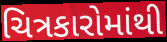
ચિત્રકારોમાંથી